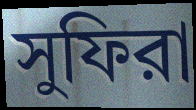
সুফিরা